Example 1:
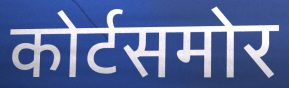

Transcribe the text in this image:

कोर्टसमोर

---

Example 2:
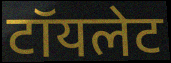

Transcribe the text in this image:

टॉयलेट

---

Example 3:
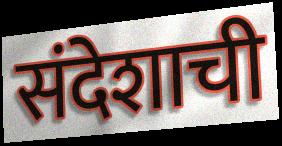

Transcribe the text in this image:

संदेशाची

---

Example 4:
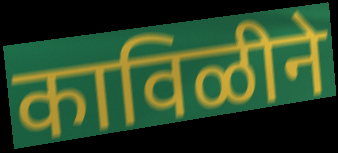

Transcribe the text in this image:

काविळीने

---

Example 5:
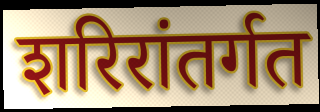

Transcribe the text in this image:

शरिरांतर्गत